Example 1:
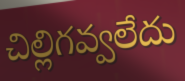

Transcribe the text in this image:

చిల్లిగవ్వలేదు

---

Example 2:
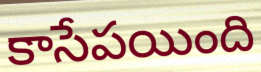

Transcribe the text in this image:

కాసేపయింది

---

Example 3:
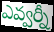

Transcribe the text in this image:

ఎవ్వర్నీ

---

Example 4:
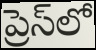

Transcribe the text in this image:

ప్రెస్‌లో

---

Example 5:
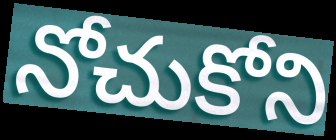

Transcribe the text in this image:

నోచుకోని